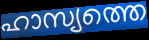
ഹാസ്യത്തെ